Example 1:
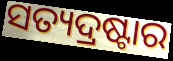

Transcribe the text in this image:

ସତ୍ୟଦ୍ରଷ୍ଟାର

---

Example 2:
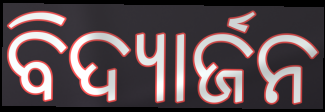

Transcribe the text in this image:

ବିଦ୍ୟାର୍ଜନ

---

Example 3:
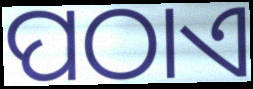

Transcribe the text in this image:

ପଠାଏ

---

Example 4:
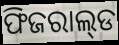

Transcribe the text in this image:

ଫିଜରାଲ୍‌ଡ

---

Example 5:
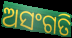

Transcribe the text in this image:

ଅସଂଗତି